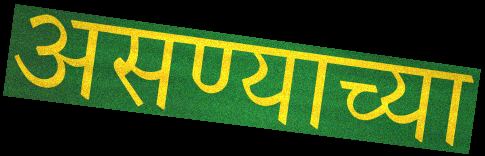
असण्याच्या